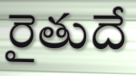
రైతుదే